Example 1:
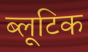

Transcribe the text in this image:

ब्लूटिक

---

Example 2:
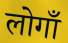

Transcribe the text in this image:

लोगाँ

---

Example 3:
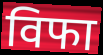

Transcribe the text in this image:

विफा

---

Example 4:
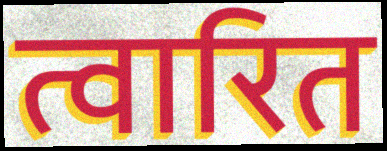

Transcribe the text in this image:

त्वारित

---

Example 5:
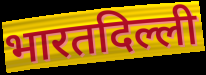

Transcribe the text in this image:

भारतदिल्ली